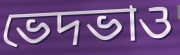
ভেদভাও